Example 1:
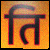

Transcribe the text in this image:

ति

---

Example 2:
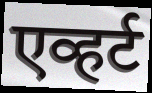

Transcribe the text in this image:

एव्हर्ट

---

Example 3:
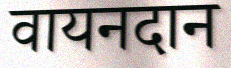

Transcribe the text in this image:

वायनदान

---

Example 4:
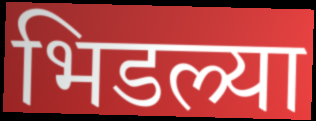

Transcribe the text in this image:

भिडल्या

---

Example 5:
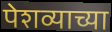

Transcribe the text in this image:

पेशव्याच्या